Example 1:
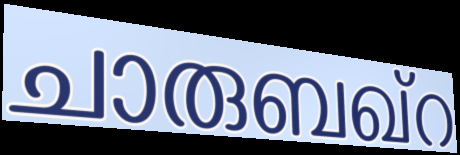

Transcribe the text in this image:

ചാരുബഖ്റ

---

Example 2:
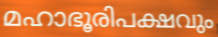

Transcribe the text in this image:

മഹാഭൂരിപക്ഷവും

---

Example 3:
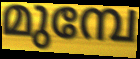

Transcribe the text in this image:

മുമ്പേ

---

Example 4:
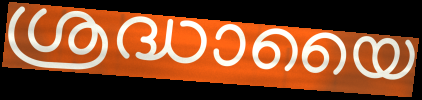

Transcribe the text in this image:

ശ്രദ്ധായൈ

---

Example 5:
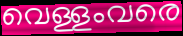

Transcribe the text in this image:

വെള്ളംവരെ